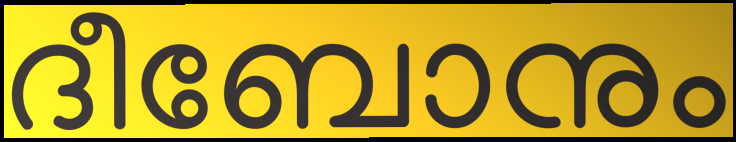
ദീബോനും